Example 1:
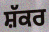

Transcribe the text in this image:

ਸ਼ੱਕਰ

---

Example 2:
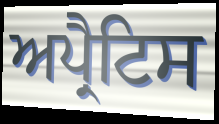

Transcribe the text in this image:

ਅਪ੍ਰੈਟਿਸ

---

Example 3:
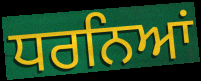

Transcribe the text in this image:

ਧਰਨਿਆਂ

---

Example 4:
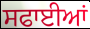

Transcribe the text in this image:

ਸਫਾਈਆਂ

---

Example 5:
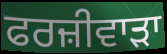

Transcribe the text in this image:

ਫਰਜ਼ੀਵਾੜਾ